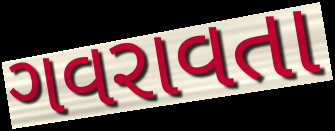
ગવરાવતા